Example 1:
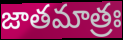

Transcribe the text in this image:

జాతమాత్రః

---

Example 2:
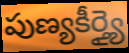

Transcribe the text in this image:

పుణ్యకీర్త్యై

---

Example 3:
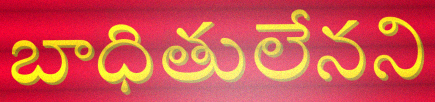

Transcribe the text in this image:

బాధితులేనని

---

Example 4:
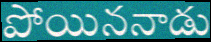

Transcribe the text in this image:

పోయిననాడు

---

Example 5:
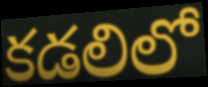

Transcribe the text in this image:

కడలిలో